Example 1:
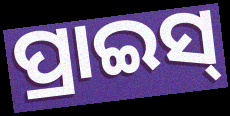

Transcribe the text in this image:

ପ୍ରାଇସ୍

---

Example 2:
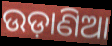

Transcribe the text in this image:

ଉଡ଼ାଣିଆ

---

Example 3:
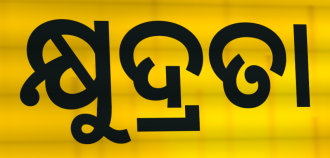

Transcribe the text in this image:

କ୍ଷୁଦ୍ରତା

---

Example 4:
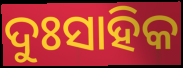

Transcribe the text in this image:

ଦୁଃସାହିକ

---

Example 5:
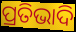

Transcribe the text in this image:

ପ୍ରତିଭାଦି